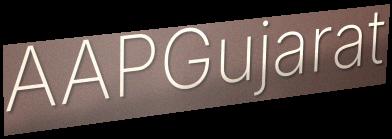
AAPGujarat